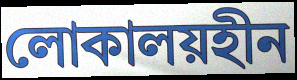
লোকালয়হীন